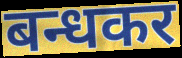
बन्धकर